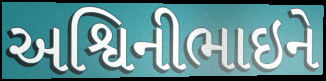
અશ્વિનીભાઇને